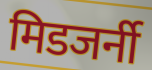
मिडजर्नी